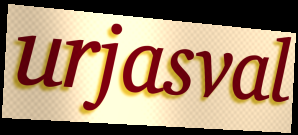
urjasval